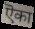
ऎका